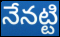
నేనట్టి